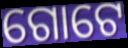
ଗୋଟେ